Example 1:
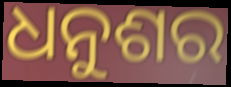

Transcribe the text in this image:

ଧନୁଶର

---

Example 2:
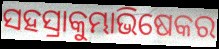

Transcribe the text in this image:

ସହସ୍ରାକୁମ୍ଭାଭିଷେକର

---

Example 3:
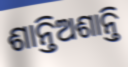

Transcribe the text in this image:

ଶାନ୍ତିଅଶାନ୍ତି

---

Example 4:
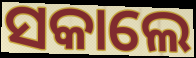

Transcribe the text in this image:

ସକାଲେ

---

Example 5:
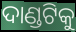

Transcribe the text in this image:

ଦାଣ୍ଡଟିକୁ